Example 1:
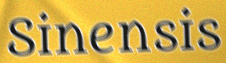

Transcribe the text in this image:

Sinensis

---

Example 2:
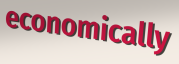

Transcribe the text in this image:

economically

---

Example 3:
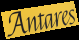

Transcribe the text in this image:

Antares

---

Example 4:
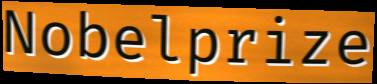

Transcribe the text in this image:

Nobelprize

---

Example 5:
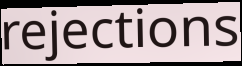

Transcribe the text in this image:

rejections